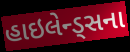
હાઇલેન્ડ્સના